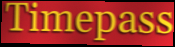
Timepass